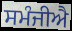
ਸਮੰਜੀਐ